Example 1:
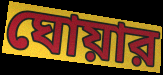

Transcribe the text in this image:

ঘোয়ার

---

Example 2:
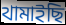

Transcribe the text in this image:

থামাইছি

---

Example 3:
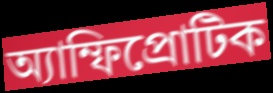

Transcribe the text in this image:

অ্যাম্ফিপ্রোটিক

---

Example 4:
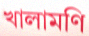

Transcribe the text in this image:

খালামণি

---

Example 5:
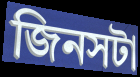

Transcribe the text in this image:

জিনসটা